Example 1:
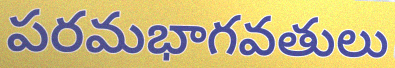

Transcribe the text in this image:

పరమభాగవతులు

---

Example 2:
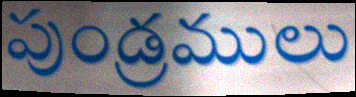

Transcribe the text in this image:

పుండ్రములు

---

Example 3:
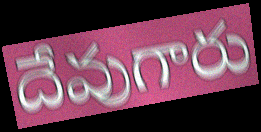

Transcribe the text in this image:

దేవుగారు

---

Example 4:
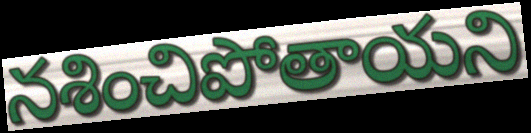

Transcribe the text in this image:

నశించిపోతాయని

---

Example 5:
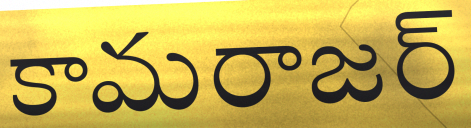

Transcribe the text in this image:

కామరాజర్